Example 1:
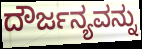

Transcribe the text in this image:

ದೌರ್ಜನ್ಯವನ್ನು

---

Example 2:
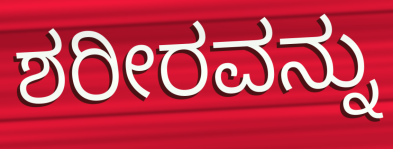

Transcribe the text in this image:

ಶರೀರವನ್ನು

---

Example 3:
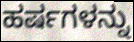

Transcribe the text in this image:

ಹರ್ಷಗಳನ್ನು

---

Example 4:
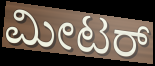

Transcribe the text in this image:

ಮೀಟರ್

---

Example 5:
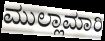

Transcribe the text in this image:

ಮುಲ್ಲಾಮಾರಿ